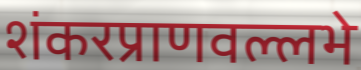
शंकरप्राणवल्लभे